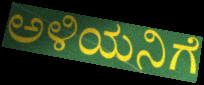
ಅಳಿಯನಿಗೆ